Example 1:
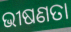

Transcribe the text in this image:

ଭୀଷଣତା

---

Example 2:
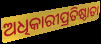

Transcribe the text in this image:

ଅଧିକାରୀପ୍ରତିଷ୍ଠାତା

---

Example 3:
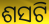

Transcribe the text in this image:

ଶସଟି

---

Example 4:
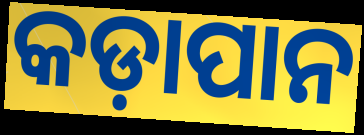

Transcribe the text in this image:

କଡ଼ାପାନ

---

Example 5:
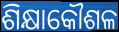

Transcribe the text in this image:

ଶିକ୍ଷାକୌଶଳ